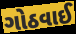
ગોઠવાઈ